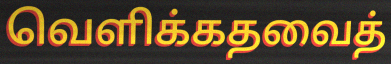
வெளிக்கதவைத்